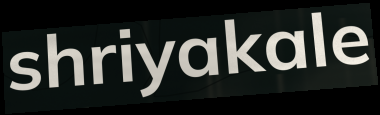
shriyakale